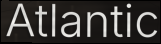
Atlantic